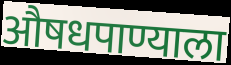
औषधपाण्याला